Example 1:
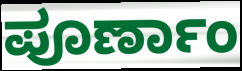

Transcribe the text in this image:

ಪೂರ್ಣಾಂ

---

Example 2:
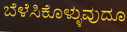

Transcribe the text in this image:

ಬೆಳೆಸಿಕೊಳ್ಳುವುದೂ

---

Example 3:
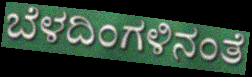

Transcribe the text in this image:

ಬೆಳದಿಂಗಳಿನಂತೆ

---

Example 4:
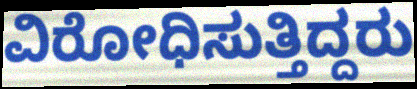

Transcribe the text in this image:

ವಿರೋಧಿಸುತ್ತಿದ್ದರು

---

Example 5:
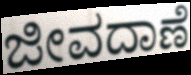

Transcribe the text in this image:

ಜೀವದಾಣೆ